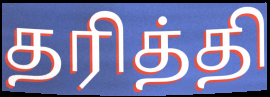
தரித்தி